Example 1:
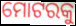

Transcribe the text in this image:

ମୋଟରକୁ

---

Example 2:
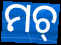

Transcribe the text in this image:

ମଚ୍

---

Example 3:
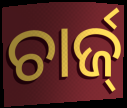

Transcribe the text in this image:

ଚାର୍ଜ୍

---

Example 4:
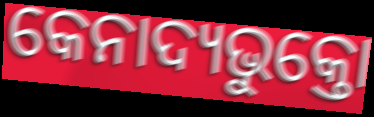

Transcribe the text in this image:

କେନାଦ୍ୟଭୁକ୍ତୋ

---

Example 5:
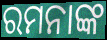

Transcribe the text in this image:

ରମନାଙ୍କ